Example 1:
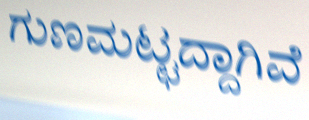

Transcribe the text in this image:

ಗುಣಮಟ್ಟದ್ದಾಗಿವೆ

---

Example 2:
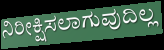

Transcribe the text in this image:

ನಿರೀಕ್ಷಿಸಲಾಗುವುದಿಲ್ಲ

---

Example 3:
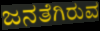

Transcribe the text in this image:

ಜನತೆಗಿರುವ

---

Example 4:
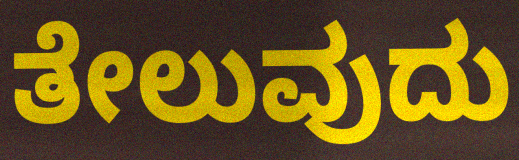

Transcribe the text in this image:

ತೇಲುವುದು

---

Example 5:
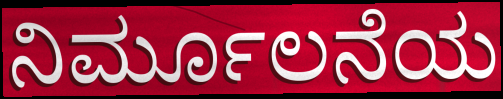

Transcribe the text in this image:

ನಿರ್ಮೂಲನೆಯ